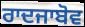
ਰਾਦਜਾਬੋਵ